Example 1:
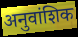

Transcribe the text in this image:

अनुवांशिक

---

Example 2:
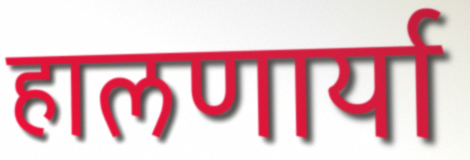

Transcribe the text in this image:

हालणार्या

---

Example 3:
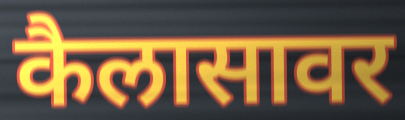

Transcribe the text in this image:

कैलासावर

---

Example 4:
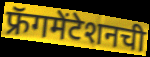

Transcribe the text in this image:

फ्रॅगमेंटेशनची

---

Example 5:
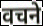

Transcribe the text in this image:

वचने